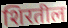
शिरतील